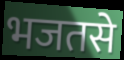
भजतसे